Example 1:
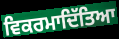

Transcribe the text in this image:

ਵਿਕਰਮਾਦਿੱਤਿਆ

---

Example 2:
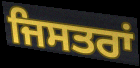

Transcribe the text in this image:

ਜਿਸਤਰਾਂ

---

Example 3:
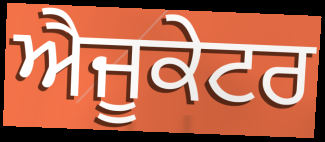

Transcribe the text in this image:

ਐਜੂਕੇਟਰ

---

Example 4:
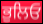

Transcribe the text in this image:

ਭੁਲਿਓ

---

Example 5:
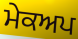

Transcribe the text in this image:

ਮੇਕਅਪ